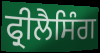
ਫ੍ਰੀਲੈਸਿੰਗ